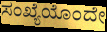
ಸಂಖ್ಯೆಯೊಂದೇ